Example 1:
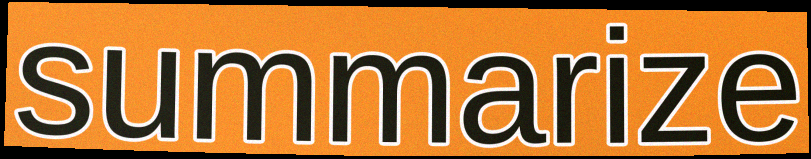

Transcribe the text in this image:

summarize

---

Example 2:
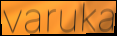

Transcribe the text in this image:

varuka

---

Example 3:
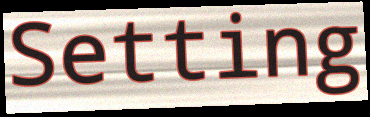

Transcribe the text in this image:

Setting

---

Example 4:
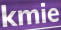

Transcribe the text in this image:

kmie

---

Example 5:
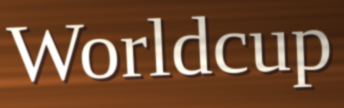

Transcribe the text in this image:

Worldcup